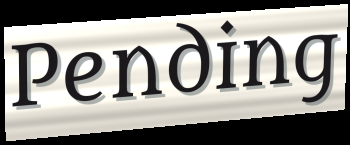
Pending